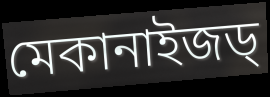
মেকানাইজড্